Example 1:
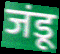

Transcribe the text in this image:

जंडू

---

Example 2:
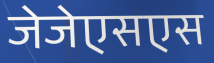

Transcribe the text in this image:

जेजेएसएस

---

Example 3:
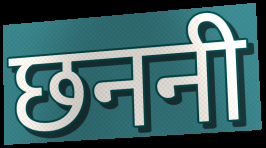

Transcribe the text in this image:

छननी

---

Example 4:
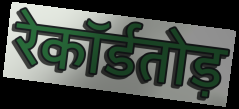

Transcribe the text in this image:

रेकॉर्डतोड़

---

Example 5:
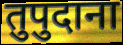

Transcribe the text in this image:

तुपुदाना